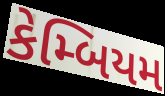
કેમ્બિયમ